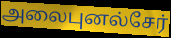
அலைபுனல்சேர்